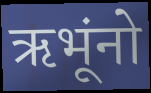
ऋभूंनो